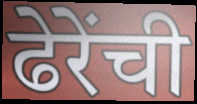
ढेरेंची